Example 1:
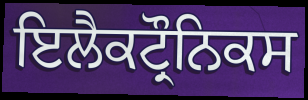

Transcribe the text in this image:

ਇਲੈਕਟ੍ਰੌਨਿਕਸ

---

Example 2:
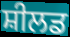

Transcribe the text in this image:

ਸ਼ੀਲਡ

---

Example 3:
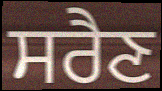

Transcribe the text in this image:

ਸਰੈਣ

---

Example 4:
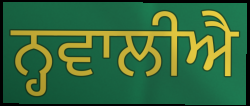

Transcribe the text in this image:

ਨ੍ਹਵਾਲੀਐ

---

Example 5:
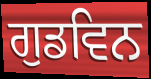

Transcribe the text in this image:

ਗੁਡਵਿਨ